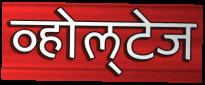
व्होल्टेज